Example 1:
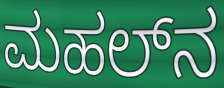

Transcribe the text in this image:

ಮಹಲ್‌ನ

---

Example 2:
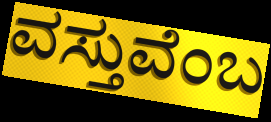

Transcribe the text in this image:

ವಸ್ತುವೆಂಬ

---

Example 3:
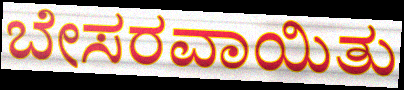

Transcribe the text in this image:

ಬೇಸರವಾಯಿತು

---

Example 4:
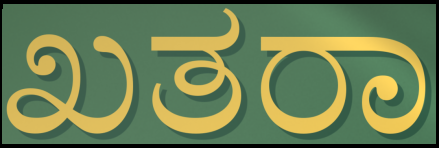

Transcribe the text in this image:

ಖತರಾ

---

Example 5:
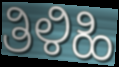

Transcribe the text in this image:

ತಿಳಿಹಿ